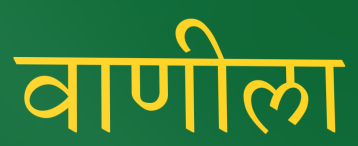
वाणीला